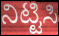
ನಿಟ್ಟಿಸಿ